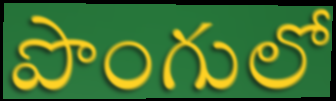
పొంగులో